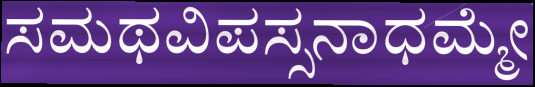
ಸಮಥವಿಪಸ್ಸನಾಧಮ್ಮೇ